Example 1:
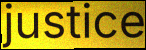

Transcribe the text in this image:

justice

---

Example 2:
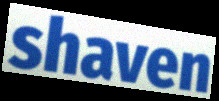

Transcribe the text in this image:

shaven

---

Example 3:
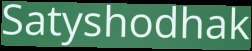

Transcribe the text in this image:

Satyshodhak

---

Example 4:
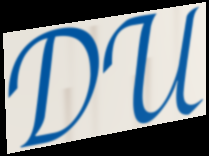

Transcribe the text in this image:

DU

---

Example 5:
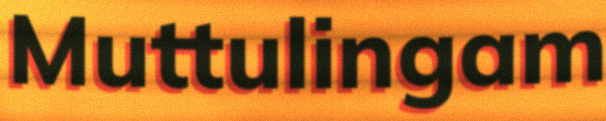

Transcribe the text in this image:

Muttulingam